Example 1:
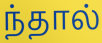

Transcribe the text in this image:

ந்தால்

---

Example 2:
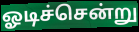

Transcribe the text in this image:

ஓடிச்சென்று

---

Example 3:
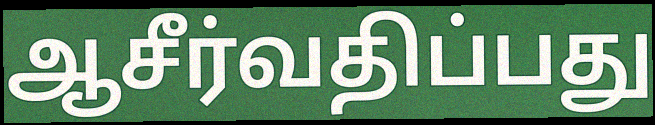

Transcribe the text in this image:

ஆசீர்வதிப்பது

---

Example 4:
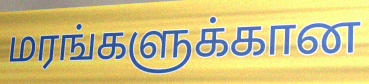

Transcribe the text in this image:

மரங்களுக்கான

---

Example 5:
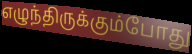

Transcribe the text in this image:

எழுந்திருக்கும்போது